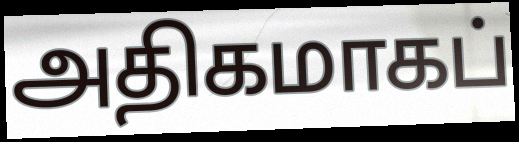
அதிகமாகப்